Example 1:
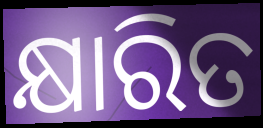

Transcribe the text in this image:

କ୍ଷାରିତ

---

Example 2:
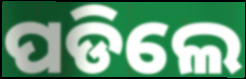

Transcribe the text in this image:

ପଡିଲେ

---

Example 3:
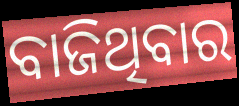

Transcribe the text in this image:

ବାଜିଥିବାର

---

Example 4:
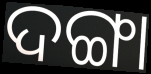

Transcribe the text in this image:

ଦଙ୍ଗା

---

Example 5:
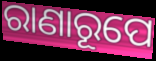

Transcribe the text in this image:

ରାଣାରୂପେ